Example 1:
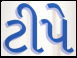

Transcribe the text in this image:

ટીપે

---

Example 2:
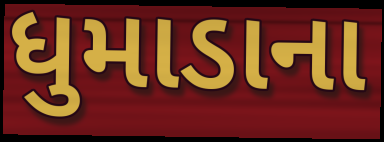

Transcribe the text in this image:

ધુમાડાના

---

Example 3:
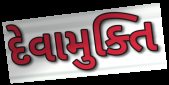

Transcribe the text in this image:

દેવામુક્તિ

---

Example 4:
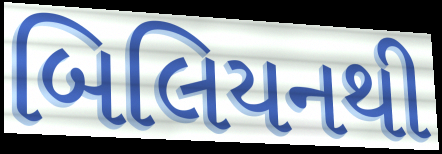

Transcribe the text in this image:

બિલિયનથી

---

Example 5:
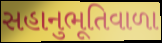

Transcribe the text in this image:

સહાનુભૂતિવાળા